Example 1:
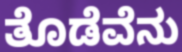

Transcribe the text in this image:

ತೊಡೆವೆನು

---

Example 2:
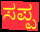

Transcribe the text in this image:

ಸಪ್ಪ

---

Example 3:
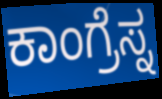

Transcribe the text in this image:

ಕಾಂಗ್ರೆಸ್ನ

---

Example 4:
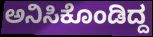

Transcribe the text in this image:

ಅನಿಸಿಕೊಂಡಿದ್ದ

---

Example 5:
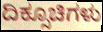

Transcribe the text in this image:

ದಿಕ್ಸೂಚಿಗಳು